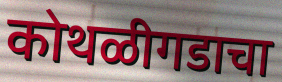
कोथळीगडाचा